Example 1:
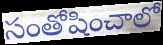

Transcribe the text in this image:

సంతోషించాలో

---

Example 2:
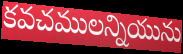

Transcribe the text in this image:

కవచములన్నియును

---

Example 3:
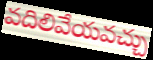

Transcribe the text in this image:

వదిలివేయవచ్చు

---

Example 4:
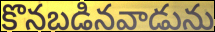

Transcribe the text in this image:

కొనబడినవాడును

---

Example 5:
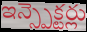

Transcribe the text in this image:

ఇన్స్పెక్టర్లు